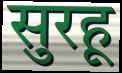
सुरहू